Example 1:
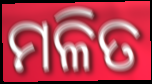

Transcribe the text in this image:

ମଳିତ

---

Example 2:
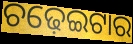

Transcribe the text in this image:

ଚଢ଼େଇଟାର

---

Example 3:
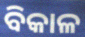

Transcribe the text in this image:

ବିକାଳ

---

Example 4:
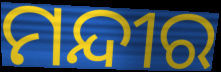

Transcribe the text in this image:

ମନ୍ଦୀର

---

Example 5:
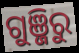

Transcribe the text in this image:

ଗୁଞ୍ଜିରୁ